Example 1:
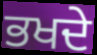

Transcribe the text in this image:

ਭਖਦੇ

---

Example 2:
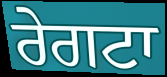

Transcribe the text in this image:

ਰੇਗਟਾ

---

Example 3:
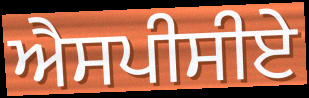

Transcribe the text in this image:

ਐਸਪੀਸੀਏ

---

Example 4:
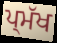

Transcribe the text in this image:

ਪ੍ਮੱਖ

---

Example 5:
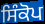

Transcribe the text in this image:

ਸਿੰਕੋਪ